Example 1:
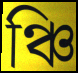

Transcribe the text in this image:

ঞ্চি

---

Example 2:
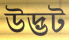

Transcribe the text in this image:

উদ্ভট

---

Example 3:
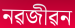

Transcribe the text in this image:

নৱজীৱন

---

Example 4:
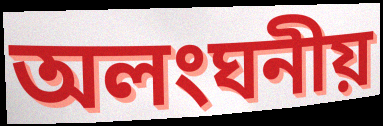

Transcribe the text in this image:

অলংঘনীয়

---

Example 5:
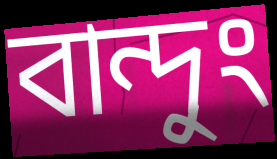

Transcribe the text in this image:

বান্দুং